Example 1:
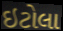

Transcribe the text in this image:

ઇટોલા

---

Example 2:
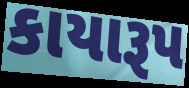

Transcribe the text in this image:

કાયારૂપ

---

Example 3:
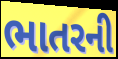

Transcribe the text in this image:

ભાતરની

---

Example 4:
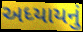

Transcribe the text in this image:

અધ્યાયનું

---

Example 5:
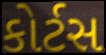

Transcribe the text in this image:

કોર્ટસ